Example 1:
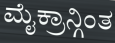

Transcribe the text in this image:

ಮೈಕ್ರಾನ್ಗಿಂತ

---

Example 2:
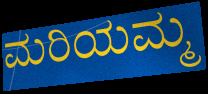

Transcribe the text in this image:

ಮರಿಯಮ್ಮ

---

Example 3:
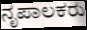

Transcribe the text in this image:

ನೃಪಾಲಕರು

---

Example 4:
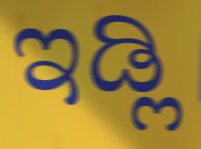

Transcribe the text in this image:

ಇಡ್ಲಿ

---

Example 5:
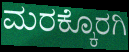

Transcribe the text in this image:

ಮರಕ್ಕೊರಗಿ